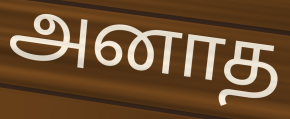
அனாத